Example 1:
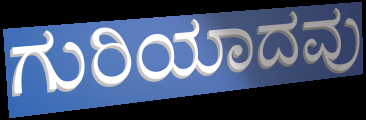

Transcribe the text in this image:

ಗುರಿಯಾದವು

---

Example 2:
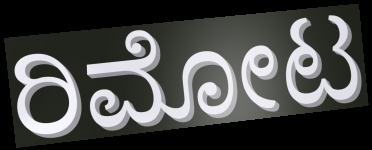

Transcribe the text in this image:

ರಿಮೋಟ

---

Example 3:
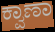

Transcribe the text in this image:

ಕ್ವಾಣಾ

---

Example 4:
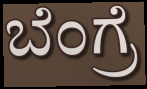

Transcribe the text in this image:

ಬೆಂಗ್ರೆ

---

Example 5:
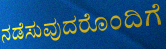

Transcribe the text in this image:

ನಡೆಸುವುದರೊಂದಿಗೆ